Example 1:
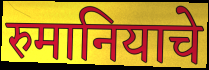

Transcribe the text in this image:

रुमानियाचे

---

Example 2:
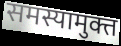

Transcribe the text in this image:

समस्यामुक्त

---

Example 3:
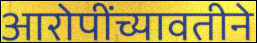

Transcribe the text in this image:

आरोपींच्यावतीने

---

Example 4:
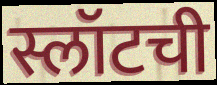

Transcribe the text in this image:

स्लॉटची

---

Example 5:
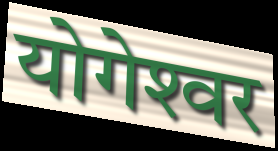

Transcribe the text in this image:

योगेश्‍वर